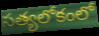
సత్యలోకంలో